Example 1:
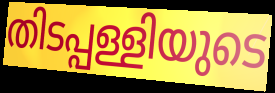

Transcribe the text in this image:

തിടപ്പള്ളിയുടെ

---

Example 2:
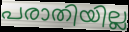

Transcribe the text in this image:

പരാതിയില്ല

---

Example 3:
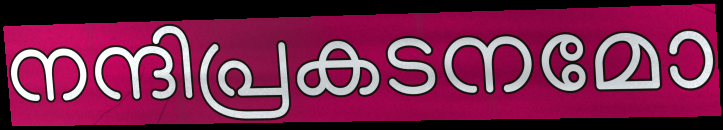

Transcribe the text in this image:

നന്ദിപ്രകടനമോ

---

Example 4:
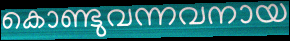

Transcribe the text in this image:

കൊണ്ടുവന്നവനായ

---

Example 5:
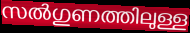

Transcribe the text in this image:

സൽഗുണത്തിലുള്ള